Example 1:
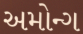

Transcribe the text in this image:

અમોન્ગ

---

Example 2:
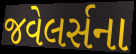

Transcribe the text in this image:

જવેલર્સના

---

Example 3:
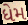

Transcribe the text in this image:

ધેમ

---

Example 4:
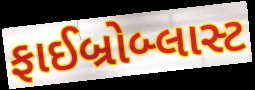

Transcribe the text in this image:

ફાઈબ્રોબ્લાસ્ટ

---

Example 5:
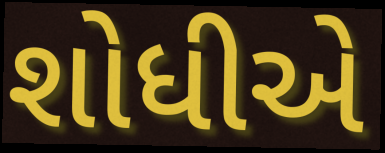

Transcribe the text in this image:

શોધીએ